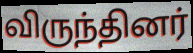
விருந்தினர்